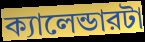
ক্যালেন্ডারটা